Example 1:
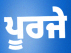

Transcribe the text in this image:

ਪੂਰਜੇ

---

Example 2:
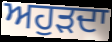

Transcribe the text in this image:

ਅਹੁੜਦਾ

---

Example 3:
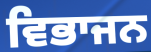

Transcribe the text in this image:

ਵਿਭਾਜਨ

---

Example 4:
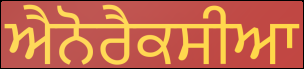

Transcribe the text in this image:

ਐਨੋਰੈਕਸੀਆ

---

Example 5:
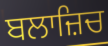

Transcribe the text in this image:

ਬਲਾਜ਼ਿਚ